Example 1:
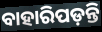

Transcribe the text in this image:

ବାହାରିପଡ଼ନ୍ତି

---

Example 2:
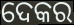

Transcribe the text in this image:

ଦେକର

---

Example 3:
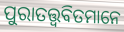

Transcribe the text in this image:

ପୁରାତତ୍ତ୍ୱବିତମାନେ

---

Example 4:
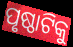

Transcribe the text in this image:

ପୃଷ୍ଠାଟିକୁ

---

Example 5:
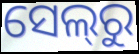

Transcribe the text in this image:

ସେଲ୍‌ରୁ